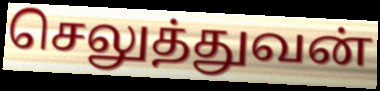
செலுத்துவன்